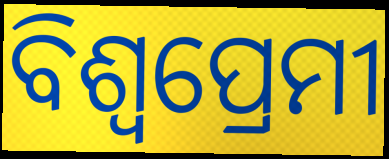
ବିଶ୍ଵପ୍ରେମୀ